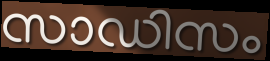
സാഡിസം